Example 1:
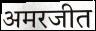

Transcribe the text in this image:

अमरजीत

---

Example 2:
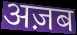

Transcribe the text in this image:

अज़ब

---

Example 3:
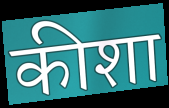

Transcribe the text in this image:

कीशा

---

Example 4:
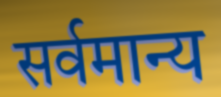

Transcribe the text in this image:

सर्वमान्य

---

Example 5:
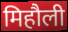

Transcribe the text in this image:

मिहौली